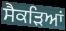
ਸੈਕੜਿਆਂ